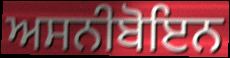
ਅਸਨੀਬੋਇਨ